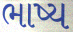
ભાષ્ય